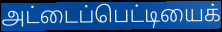
அட்டைப்பெட்டியைக்